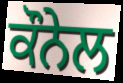
ਕੌਨੇਲ